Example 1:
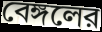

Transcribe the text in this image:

বেঙ্গলের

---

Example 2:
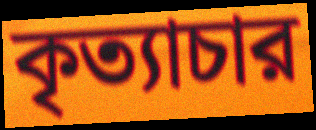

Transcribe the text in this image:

কৃত্যাচার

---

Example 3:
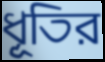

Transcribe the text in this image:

ধূতির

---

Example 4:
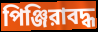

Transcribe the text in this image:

পিঞ্জিরাবদ্ধ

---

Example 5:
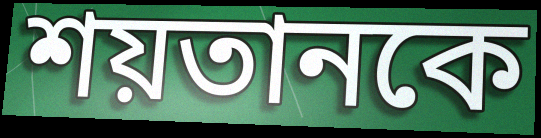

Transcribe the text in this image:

শয়তানকে